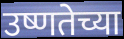
उष्णतेच्या